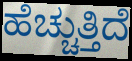
ಹೆಚ್ಚುತ್ತಿದೆ